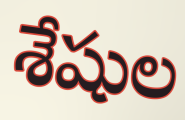
శేషుల